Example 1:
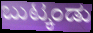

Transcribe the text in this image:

ಬುಟ್ಕಂಡು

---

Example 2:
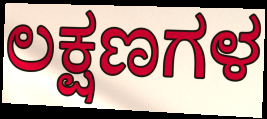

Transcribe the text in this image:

ಲಕ್ಷಣಗಳ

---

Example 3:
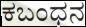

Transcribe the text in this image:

ಕಬಂಧನ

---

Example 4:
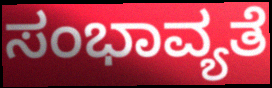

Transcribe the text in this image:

ಸಂಭಾವ್ಯತೆ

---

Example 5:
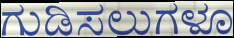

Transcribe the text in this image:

ಗುಡಿಸಲುಗಳೂ